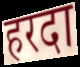
हरदा